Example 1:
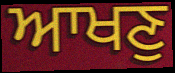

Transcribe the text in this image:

ਆਖਣੁ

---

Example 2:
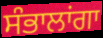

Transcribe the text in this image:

ਸੰਭਾਲਾਂਗਾ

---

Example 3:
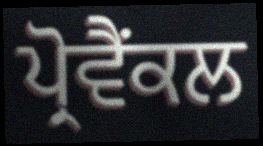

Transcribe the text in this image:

ਪ੍ਰੋਵੈਂਕਲ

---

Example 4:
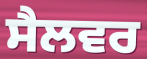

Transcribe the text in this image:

ਸੈਲਵਰ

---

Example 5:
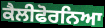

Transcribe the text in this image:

ਕੈਲੀਫੋਰਨਿਆ